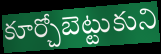
కూర్చోబెట్టుకుని